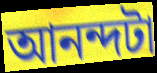
আনন্দটা